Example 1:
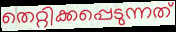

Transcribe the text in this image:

തെറ്റിക്കപ്പെടുന്നത്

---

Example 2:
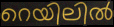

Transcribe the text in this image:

റെയിലിൽ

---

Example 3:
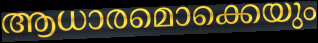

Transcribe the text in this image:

ആധാരമൊക്കെയും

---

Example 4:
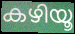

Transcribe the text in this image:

കഴിയൂ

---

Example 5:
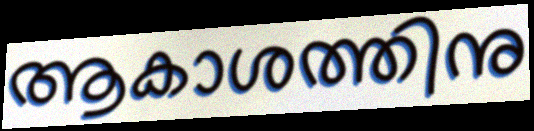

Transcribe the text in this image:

ആകാശത്തിനു